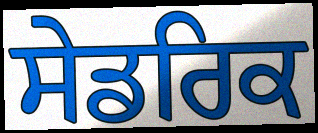
ਸੇਡਰਿਕ